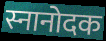
स्नानोदक